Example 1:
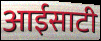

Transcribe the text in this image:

आईसाटी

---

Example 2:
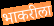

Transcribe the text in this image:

भाकरीला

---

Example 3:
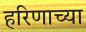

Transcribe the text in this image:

हरिणाच्या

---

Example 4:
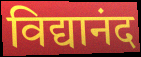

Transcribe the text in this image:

विद्यानंद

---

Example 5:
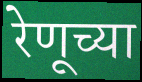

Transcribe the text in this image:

रेणूच्या